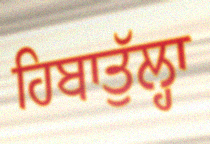
ਹਿਬਾਤੁੱਲ੍ਹਾ